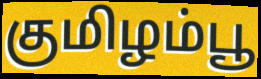
குமிழம்பூ